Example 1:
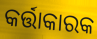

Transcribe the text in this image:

କର୍ତ୍ତାକାରକ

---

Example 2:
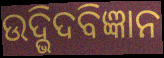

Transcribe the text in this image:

ଉଦ୍ଭିଦବିଜ୍ଞାନ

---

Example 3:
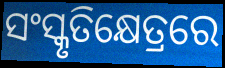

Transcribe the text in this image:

ସଂସ୍କୃତିକ୍ଷେତ୍ରରେ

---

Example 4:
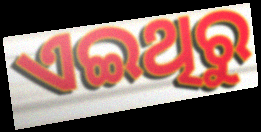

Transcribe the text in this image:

ଏଇଥିରୁ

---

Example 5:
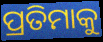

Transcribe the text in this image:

ପ୍ରତିମାକୁ